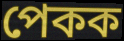
পেকক